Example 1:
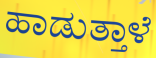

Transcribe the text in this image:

ಹಾಡುತ್ತಾಳೆ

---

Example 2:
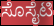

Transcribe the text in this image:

ಸೊಸೈಟಿ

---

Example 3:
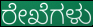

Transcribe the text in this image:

ರೇಖೆಗಳು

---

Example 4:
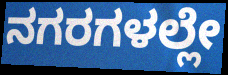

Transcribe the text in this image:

ನಗರಗಳಲ್ಲೇ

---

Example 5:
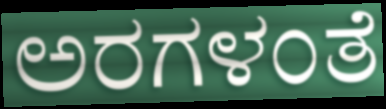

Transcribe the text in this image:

ಅರಗಳಂತೆ